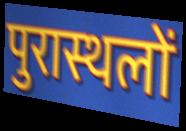
पुरास्थलों